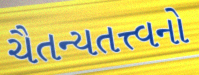
ચૈતન્યતત્ત્વનો